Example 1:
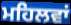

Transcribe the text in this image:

ਮਹਿਲਵਾਂ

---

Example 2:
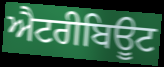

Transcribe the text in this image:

ਐਟਰੀਬਿਊਟ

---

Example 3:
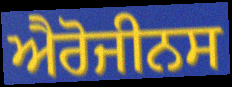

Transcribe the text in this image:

ਐਰੋਜੀਨਸ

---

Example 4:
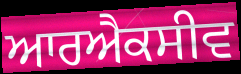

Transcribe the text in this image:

ਆਰਐਕਸੀਵ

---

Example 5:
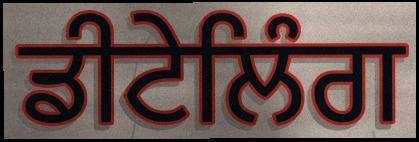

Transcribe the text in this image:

ਡੀਟੇਲਿੰਗ